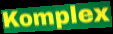
Komplex